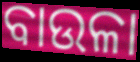
ବାଉଳା